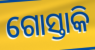
ଗୋସ୍ତାକି